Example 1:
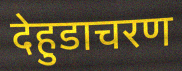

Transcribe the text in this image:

देहुडाचरण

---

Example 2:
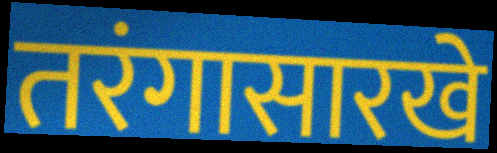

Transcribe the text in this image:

तरंगासारखे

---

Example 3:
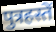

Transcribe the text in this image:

पुत्रहस्तें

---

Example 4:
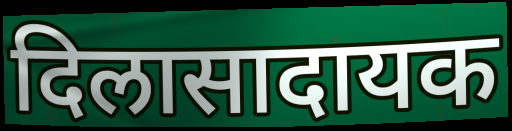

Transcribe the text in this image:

दिलासादायक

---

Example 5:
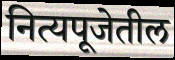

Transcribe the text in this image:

नित्यपूजेतील